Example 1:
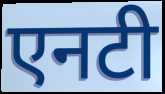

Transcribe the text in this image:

एनटी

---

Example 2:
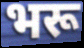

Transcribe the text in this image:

भरू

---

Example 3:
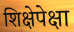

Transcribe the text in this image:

शिक्षेपेक्षा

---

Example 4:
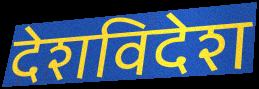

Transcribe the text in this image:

देशविदेश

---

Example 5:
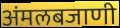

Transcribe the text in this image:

अंमलबजाणी